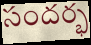
సందర్భ